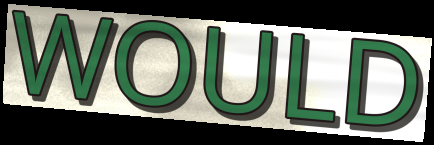
WOULD